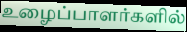
உழைப்பாளர்களில்